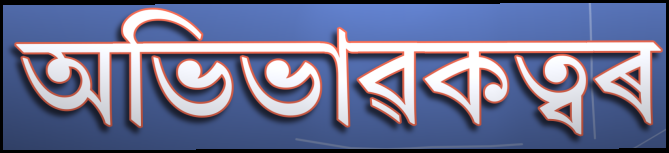
অভিভাৱকত্বৰ